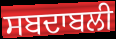
ਸਬਦਾਬਲੀ